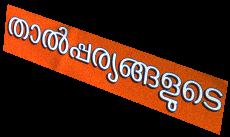
താൽപ്പര്യങ്ങളുടെ